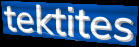
tektites